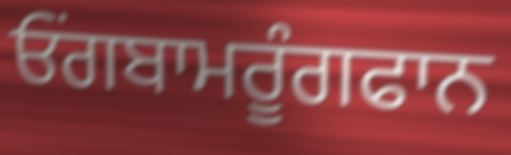
ਓਂਗਬਾਮਰੂੰਗਫਾਨ